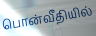
பொன்வீதியில்